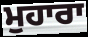
ਮੁਹਾਰਾ